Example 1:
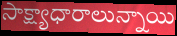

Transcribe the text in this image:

సాక్ష్యాధారాలున్నాయి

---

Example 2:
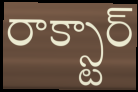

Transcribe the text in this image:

రాక్స్టార్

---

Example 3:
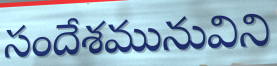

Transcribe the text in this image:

సందేశమునువిని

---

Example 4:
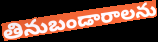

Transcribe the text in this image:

తినుబండారాలను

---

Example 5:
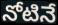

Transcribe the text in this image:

నోటినే